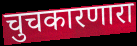
चुचकारणारा